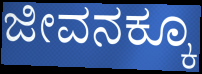
ಜೀವನಕ್ಕೂ